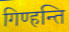
गिण्हन्ति